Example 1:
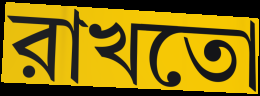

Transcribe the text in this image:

রাখতো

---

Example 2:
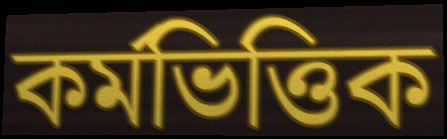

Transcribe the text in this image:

কর্মভিত্তিক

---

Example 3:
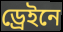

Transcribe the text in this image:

ড্রেইনে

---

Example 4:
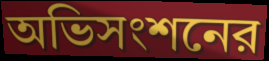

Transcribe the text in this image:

অভিসংশনের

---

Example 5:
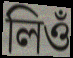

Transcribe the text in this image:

লিওঁ